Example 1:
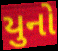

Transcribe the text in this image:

યુનો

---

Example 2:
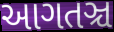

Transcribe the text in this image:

આગતઞ્ચ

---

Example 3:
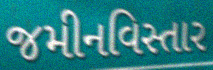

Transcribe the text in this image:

જમીનવિસ્તાર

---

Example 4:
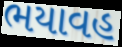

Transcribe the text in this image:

ભયાવહ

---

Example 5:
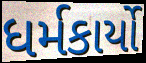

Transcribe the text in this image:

ધર્મકાર્યો